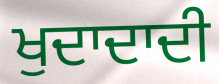
ਖੁਦਾਦਾਦੀ